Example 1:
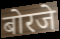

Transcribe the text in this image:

बोरजे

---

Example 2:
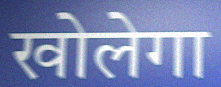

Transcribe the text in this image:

खोलेगा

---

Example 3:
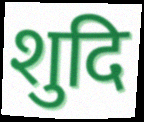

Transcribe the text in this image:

शुदि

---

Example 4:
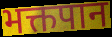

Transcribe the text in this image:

भक्तपान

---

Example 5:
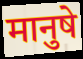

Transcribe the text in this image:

मानुषे